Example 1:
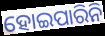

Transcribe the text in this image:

ହୋଇପାରିନି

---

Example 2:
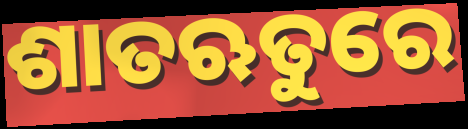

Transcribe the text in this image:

ଶାତଋତୁରେ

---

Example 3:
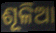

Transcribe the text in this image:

ଶୂଳିଆ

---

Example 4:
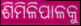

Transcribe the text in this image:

ଶିମିଳିପାଳକୁ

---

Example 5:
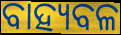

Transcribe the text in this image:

ବାହ୍ୟବଳ